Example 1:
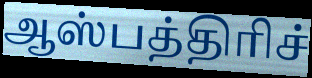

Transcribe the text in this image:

ஆஸ்பத்திரிச்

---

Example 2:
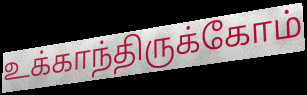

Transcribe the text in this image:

உக்காந்திருக்கோம்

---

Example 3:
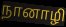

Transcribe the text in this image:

நானாழி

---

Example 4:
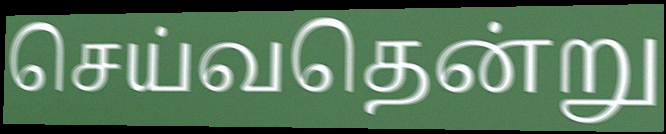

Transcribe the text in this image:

செய்வதென்று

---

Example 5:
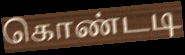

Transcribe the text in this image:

கொண்டடி